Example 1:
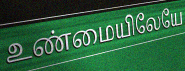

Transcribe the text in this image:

உண்மையிலேயே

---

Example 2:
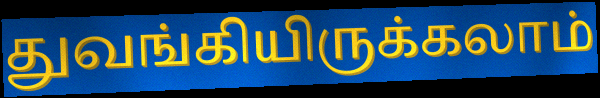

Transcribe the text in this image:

துவங்கியிருக்கலாம்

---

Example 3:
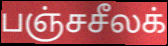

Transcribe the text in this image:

பஞ்சசீலக்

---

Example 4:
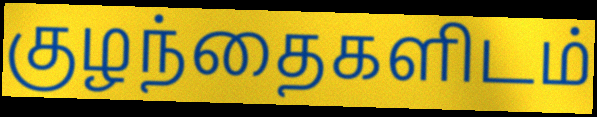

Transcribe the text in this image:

குழந்தைகளிடம்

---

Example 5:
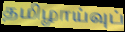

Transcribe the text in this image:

தமிழாய்வுப்